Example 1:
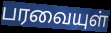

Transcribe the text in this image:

பரவையுள்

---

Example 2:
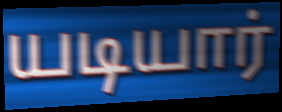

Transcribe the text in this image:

யடியார்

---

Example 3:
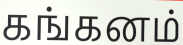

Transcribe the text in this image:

கங்கனம்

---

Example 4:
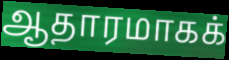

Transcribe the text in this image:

ஆதாரமாகக்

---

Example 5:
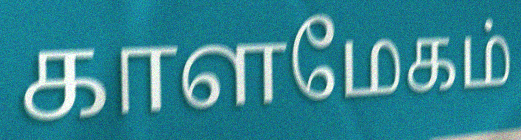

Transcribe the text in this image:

காளமேகம்